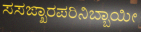
ಸಸಙ್ಖಾರಪರಿನಿಬ್ಬಾಯೀ